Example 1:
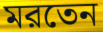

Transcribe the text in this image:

মরতেন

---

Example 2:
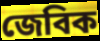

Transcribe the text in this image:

জেবিক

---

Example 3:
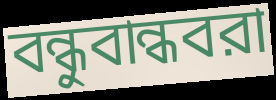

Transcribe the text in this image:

বন্ধুবান্ধবরা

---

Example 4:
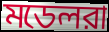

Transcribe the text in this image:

মডেলরা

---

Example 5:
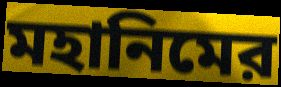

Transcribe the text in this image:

মহানিমের